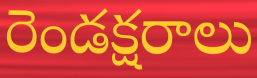
రెండక్షరాలు